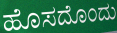
ಹೊಸದೊಂದು